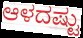
ಆಳದಷ್ಟು